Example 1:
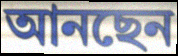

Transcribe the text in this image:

আনছেন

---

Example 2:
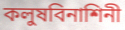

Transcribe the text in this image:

কলুষবিনাশিনী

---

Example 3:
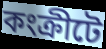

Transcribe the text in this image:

কংক্রীটে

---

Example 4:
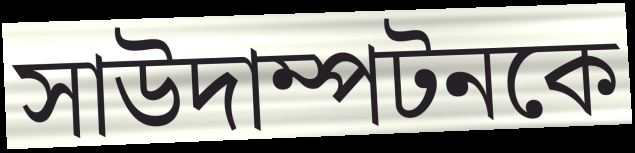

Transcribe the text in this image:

সাউদাম্পটনকে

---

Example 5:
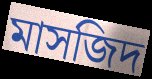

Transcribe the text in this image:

মাসজিদ